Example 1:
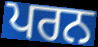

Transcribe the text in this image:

ਪਰਨ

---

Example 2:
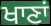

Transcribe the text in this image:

ਖਾਣਾਂ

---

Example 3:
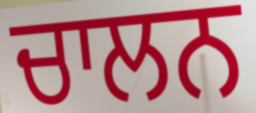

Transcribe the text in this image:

ਚਾਲਨ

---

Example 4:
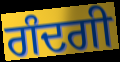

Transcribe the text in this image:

ਗੰਦਗੀ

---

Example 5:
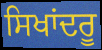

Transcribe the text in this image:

ਸਿਖਾਂਦਰੂ